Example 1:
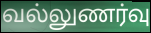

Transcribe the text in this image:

வல்லுணர்வு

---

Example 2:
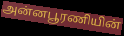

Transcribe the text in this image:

அன்னபூரணியின்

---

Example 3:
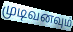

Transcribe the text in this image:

முடிவனவும்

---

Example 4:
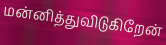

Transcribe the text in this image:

மன்னித்துவிடுகிறேன்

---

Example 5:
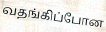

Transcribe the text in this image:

வதங்கிப்போன